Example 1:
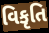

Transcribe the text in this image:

વિકૃતિ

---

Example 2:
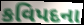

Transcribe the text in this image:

કવિપદના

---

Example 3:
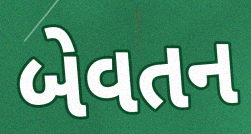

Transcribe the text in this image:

બેવતન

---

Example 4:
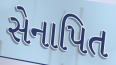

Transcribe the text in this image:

સેનાપિત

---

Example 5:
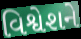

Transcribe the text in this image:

વિશ્વેશને